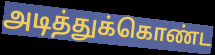
அடித்துக்கொண்ட